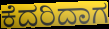
ಕೆದರಿದಾಗ